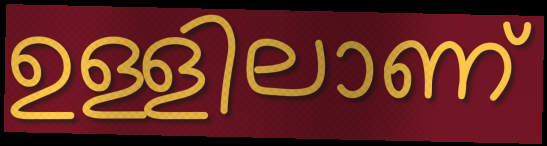
ഉള്ളിലാണ്